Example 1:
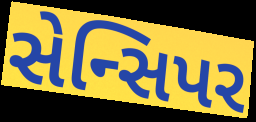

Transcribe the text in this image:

સેન્સિપર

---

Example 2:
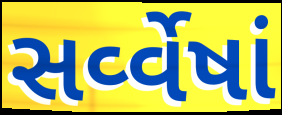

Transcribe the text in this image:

સર્વ્વેષાં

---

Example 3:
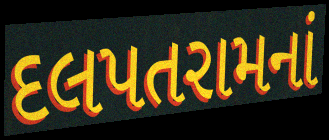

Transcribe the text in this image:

દલપતરામનાં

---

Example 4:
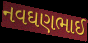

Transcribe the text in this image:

નવઘણભાઈ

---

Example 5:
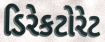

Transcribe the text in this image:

ડિરેકટોરેટ